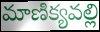
మాణిక్యవల్లి